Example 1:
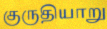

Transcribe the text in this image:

குருதியாறு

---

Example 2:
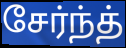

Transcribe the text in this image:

சேர்ந்த்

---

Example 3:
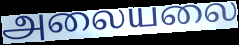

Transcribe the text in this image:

அலையலை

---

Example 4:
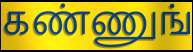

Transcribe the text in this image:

கண்ணுங்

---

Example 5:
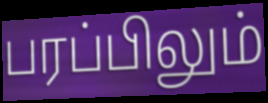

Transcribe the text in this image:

பரப்பிலும்